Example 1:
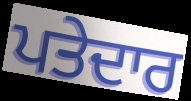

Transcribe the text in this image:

ਪਤੇਦਾਰ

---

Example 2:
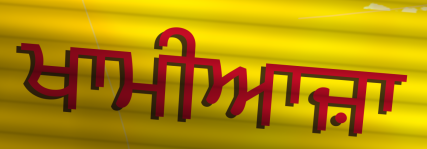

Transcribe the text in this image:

ਖਾਮੀਆਜ਼ਾ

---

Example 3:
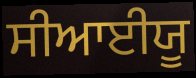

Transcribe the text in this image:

ਸੀਆਈਯੂ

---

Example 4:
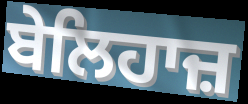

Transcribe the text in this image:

ਬੇਲਿਹਾਜ਼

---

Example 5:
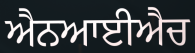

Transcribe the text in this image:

ਐਨਆਈਐਚ